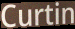
Curtin